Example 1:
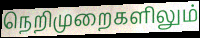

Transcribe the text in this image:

நெறிமுறைகளிலும்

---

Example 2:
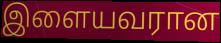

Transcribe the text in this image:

இளையவரான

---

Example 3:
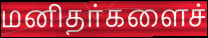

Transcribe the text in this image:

மனிதர்களைச்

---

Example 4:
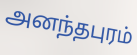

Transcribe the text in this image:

அனந்தபுரம்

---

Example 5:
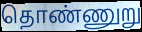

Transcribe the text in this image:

தொண்ணுறு